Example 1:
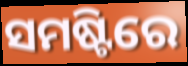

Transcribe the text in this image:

ସମଷ୍ଟିରେ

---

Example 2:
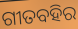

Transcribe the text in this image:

ଗୀତବହିର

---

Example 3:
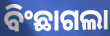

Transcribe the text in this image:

ବିଂଛାଗଲା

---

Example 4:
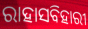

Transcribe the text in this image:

ରାହାସବିହାରୀ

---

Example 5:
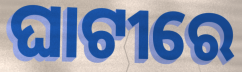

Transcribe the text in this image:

ଘାଟୀରେ